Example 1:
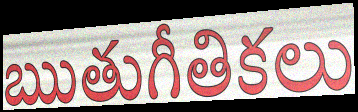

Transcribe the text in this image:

ఋతుగీతికలు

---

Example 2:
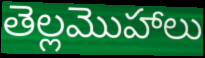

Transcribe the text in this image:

తెల్లమొహాలు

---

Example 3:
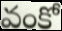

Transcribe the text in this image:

వంకో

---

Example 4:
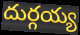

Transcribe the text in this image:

దుర్గయ్య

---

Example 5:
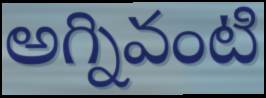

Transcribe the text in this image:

అగ్నివంటి